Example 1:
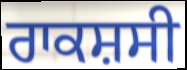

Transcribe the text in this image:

ਰਾਕਸ਼ਸੀ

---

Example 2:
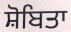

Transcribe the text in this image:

ਸ਼ੋਬਿਤਾ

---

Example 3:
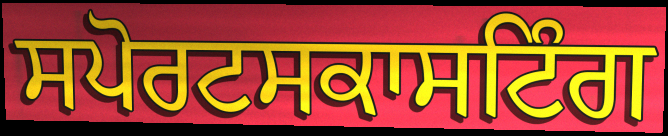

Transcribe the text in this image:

ਸਪੋਰਟਸਕਾਸਟਿੰਗ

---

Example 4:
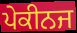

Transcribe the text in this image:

ਪੇਕੀਨਜ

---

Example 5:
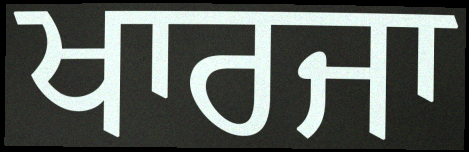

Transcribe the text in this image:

ਖਾਰਜਾ